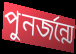
পুনর্জন্মে